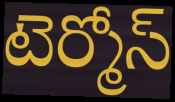
టెర్మోస్